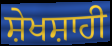
ਸ਼ੇਖਸ਼ਾਹੀ